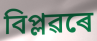
বিপ্লৱৰে